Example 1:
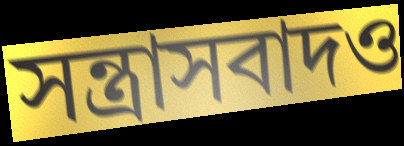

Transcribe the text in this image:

সন্ত্রাসবাদও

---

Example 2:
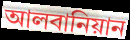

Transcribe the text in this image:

আলবানিয়ান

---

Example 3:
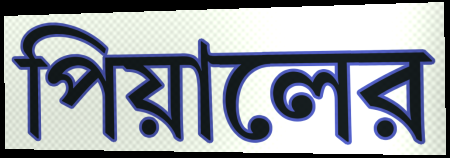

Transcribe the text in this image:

পিয়ালের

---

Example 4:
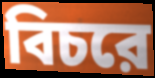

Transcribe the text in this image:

বিচরে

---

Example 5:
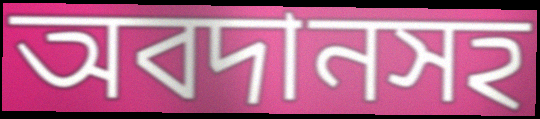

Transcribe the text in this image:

অবদানসহ